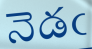
నెడఁ